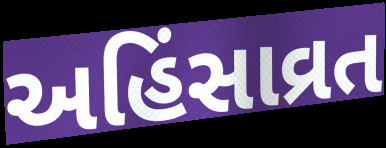
અહિંસાવ્રત